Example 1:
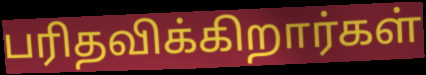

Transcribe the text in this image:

பரிதவிக்கிறார்கள்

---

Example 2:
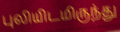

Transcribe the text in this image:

புலியிடமிருந்து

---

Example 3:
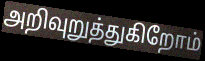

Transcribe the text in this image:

அறிவுறுத்துகிறோம்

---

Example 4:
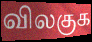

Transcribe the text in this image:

விலகுக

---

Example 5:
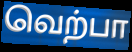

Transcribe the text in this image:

வெற்பா